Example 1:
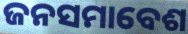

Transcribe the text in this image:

ଜନସମାବେଶ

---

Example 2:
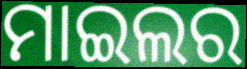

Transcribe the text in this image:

ମାଇଲର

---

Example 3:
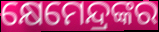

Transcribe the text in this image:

କ୍ଷେମେନ୍ଦ୍ରଙ୍କର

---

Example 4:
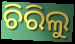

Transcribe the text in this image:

ଚିରିଲୁ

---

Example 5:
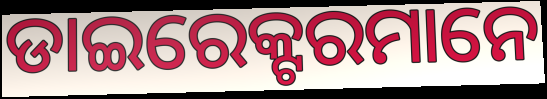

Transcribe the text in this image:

ଡାଇରେକ୍ଟରମାନେ